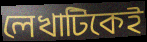
লেখাটিকেই